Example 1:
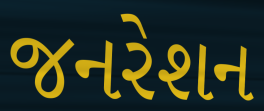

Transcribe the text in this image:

જનરેશન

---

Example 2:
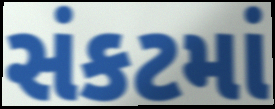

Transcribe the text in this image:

સંકટમાં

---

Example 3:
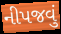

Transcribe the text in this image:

નીપજવું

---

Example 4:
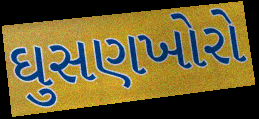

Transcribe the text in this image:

ઘુસણખોરો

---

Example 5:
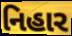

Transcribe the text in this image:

નિહાર